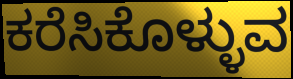
ಕರೆಸಿಕೊಳ್ಳುವ